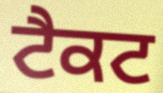
ਟੈਕਟ